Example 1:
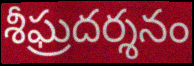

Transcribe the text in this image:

శీఘ్రదర్శనం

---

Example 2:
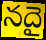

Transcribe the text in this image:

నదై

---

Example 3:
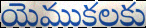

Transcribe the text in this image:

యెముకలకు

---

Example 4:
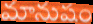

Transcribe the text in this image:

మానుషం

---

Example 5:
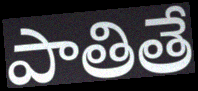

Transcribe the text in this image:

పాతితే